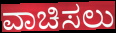
ವಾಚಿಸಲು